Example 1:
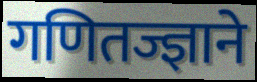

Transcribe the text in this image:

गणितज्ज्ञाने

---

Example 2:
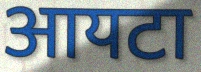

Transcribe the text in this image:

आयटा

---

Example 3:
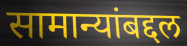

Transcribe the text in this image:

सामान्यांबद्दल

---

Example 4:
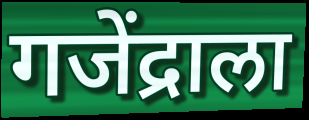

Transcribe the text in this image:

गजेंद्राला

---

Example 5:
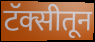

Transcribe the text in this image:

टॅक्‍सीतून